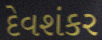
દેવશંકર